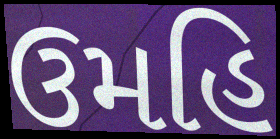
ઉમહિ